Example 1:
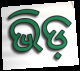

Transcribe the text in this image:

ଭିଡ଼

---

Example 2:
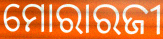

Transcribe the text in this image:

ମୋରାରଜୀ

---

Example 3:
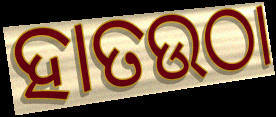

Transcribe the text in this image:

ହାତଉଠା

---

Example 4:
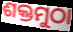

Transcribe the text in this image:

ଶକ୍ତମୁଠା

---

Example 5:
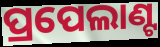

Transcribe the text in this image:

ପ୍ରପେଲାଣ୍ଟ